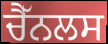
ਚੈੱਨਲਸ